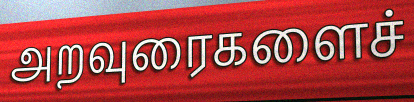
அறவுரைகளைச்